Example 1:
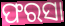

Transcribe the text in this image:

ଫରସା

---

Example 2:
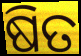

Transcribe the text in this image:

ଷିତ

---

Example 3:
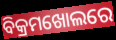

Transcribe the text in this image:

ବିକ୍ରମଖୋଲରେ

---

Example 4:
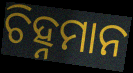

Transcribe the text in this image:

ଚିହ୍ନମାନ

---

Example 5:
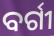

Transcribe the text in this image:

ବର୍ଗୀ